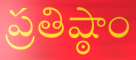
ప్రతిష్ఠాం